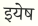
इयेष